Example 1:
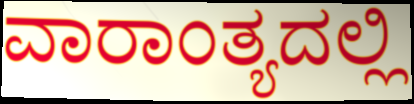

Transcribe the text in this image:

ವಾರಾಂತ್ಯದಲ್ಲಿ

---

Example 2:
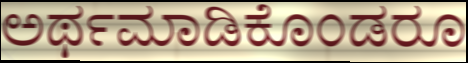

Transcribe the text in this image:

ಅರ್ಥಮಾಡಿಕೊಂಡರೂ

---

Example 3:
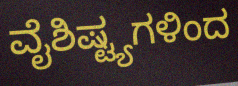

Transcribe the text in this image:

ವೈಶಿಷ್ಟ್ಯಗಳಿಂದ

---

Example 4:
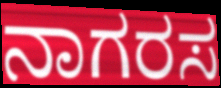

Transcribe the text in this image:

ನಾಗರಸ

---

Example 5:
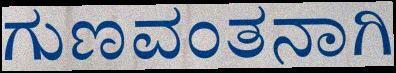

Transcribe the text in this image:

ಗುಣವಂತನಾಗಿ